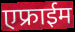
एफ्राईम